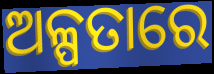
ଅଳ୍ପତାରେ